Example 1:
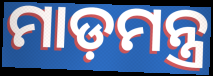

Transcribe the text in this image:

ମାଡ଼ମନ୍ତ୍ର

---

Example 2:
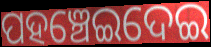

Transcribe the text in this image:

ପହଞ୍ଚେଇଦେଇ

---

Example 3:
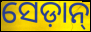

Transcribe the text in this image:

ସେଡ଼ାନ୍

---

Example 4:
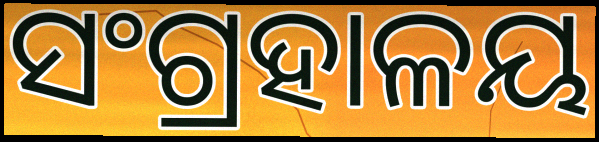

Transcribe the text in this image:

ସଂଗ୍ରହାଳୟ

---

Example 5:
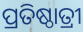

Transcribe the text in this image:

ପ୍ରତିଷ୍ଠାତ୍ରୀ